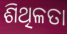
ଶିଥିଳତା